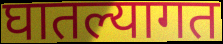
घातल्यागत